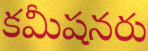
కమీషనరు